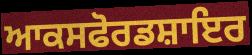
ਆਕਸਫੋਰਡਸ਼ਾਇਰ